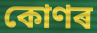
কোণৰ